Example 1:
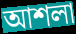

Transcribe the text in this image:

আশলা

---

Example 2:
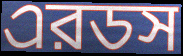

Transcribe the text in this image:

এরডস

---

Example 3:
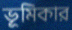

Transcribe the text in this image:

ভূমিকার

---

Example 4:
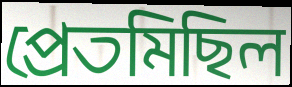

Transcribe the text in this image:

প্রেতমিছিল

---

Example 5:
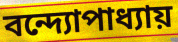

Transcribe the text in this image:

বন্দ্যোপাধ্যায়